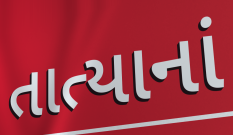
તાત્યાનાં